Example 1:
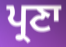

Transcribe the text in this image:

ਪ੍ਰਣਾ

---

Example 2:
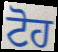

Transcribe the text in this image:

ਟੋਹ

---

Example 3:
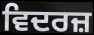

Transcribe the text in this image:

ਵਿਦਰਜ਼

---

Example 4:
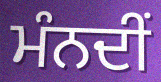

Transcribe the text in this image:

ਮੰਨਦੀਂ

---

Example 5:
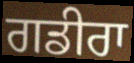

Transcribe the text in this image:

ਗਡੀਰਾ